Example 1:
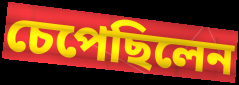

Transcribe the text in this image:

চেপেছিলেন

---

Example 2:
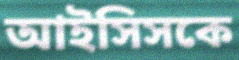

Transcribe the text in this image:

আইসিসকে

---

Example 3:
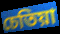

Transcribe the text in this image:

চেতিয়া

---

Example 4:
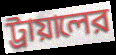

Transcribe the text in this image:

ট্রায়ালের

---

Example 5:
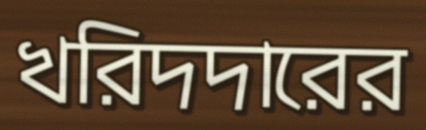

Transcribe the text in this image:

খরিদদারের